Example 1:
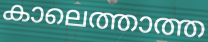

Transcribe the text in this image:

കാലെത്താത്ത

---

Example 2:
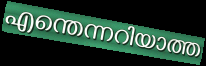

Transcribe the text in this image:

എന്തെന്നറിയാത്ത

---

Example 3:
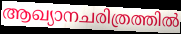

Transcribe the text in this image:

ആഖ്യാനചരിത്രത്തിൽ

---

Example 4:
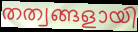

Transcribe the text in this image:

തത്വങ്ങളായി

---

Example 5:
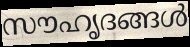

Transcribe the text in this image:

സൗഹൃദങ്ങൾ